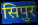
सिपुर